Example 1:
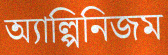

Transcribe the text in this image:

অ্যাল্পিনিজম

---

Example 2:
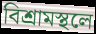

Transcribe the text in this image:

বিশ্রামস্থলে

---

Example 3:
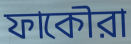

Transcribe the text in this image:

ফাকৌরা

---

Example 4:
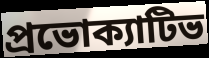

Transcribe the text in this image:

প্রভোক্যাটিভ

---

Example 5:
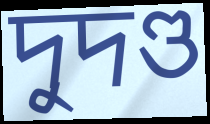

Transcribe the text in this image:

দুদণ্ড